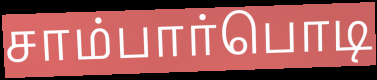
சாம்பார்பொடி